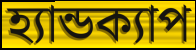
হ্যান্ডক্যাপ